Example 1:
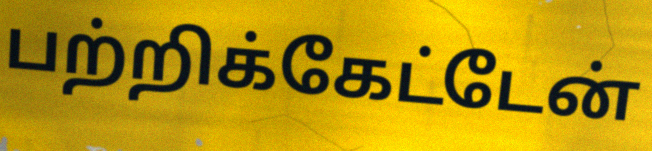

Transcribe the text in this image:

பற்றிக்கேட்டேன்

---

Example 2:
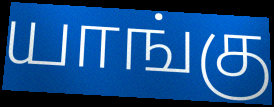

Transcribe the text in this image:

யாங்கு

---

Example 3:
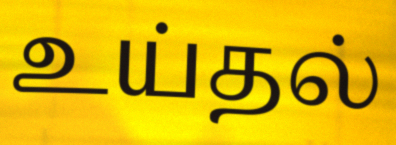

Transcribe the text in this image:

உய்தல்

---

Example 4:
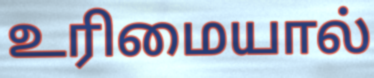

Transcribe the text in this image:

உரிமையால்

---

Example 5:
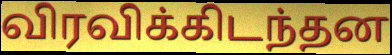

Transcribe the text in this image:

விரவிக்கிடந்தன